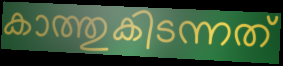
കാത്തുകിടന്നത്